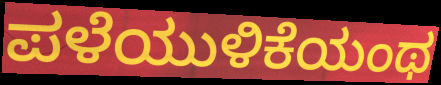
ಪಳೆಯುಳಿಕೆಯಂಥ